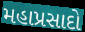
મહાપ્રસાદો